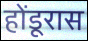
होंडूरास